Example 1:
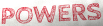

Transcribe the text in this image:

POWERS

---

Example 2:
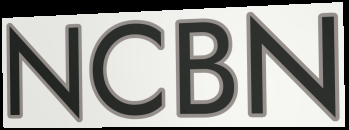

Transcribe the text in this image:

NCBN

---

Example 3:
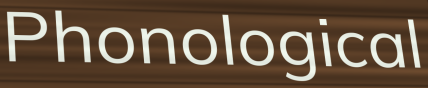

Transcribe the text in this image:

Phonological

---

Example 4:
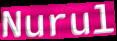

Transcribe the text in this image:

Nurul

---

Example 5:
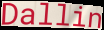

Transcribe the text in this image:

Dallin